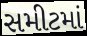
સમીટમાં